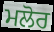
ਮਲੋਰ